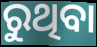
ରୁଥିବା